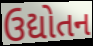
ઉદ્યોતન